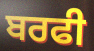
ਬਰਫੀ